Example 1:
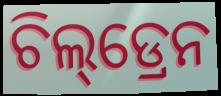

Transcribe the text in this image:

ଚିଲ୍‌ଡ୍ରେନ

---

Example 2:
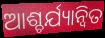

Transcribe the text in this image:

ଆଶ୍ଚର୍ଯ୍ୟାନ୍ୱିତ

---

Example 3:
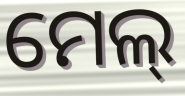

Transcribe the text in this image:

ମେଲ୍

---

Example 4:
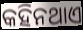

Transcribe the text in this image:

କହିନଥାଏ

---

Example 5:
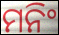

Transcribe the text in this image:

ମନିଂ